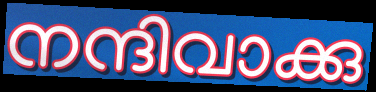
നന്ദിവാക്കു